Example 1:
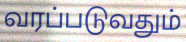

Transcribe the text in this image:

வரப்படுவதும்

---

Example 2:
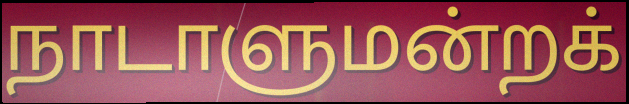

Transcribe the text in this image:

நாடாளுமன்றக்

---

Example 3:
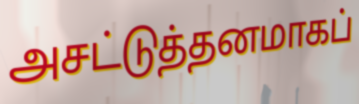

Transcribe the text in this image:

அசட்டுத்தனமாகப்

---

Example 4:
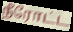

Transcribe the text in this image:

நீரோட்ட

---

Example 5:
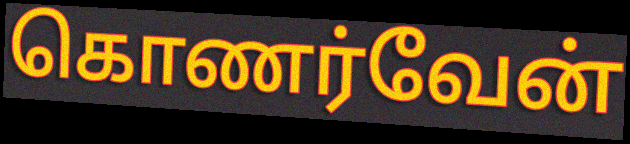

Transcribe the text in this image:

கொணர்வேன்